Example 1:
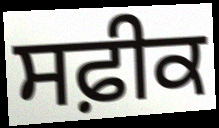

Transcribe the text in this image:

ਸਫ਼ੀਕ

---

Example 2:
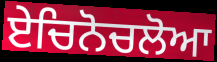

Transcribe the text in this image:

ਏਚਿਨੋਚਲੋਆ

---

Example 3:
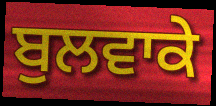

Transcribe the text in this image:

ਬੁਲਵਾਕੇ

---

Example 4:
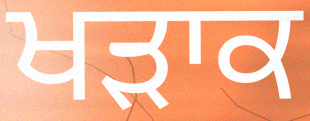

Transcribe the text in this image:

ਖੜਾਕ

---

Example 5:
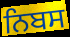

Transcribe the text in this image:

ਨਿਬਸ